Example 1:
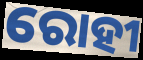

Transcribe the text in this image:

ରୋହୀ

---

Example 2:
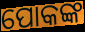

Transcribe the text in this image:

ପୋକଙ୍କ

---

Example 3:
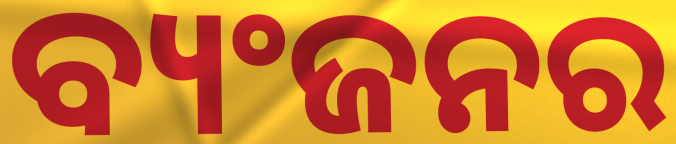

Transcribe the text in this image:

ବ୍ୟଂଜନର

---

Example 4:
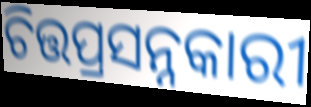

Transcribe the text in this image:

ଚିତ୍ତପ୍ରସନ୍ନକାରୀ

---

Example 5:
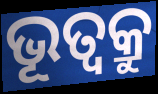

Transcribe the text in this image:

ଭୂତ୍ଵକ୍ରୁ